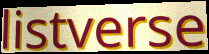
listverse